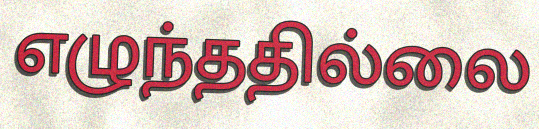
எழுந்ததில்லை